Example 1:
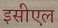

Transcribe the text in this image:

इसीएल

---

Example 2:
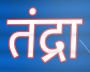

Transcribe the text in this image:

तंद्रा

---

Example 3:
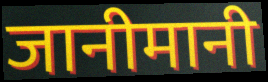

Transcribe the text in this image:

जानीमानी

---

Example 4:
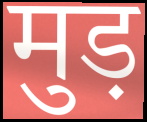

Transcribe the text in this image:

मुड़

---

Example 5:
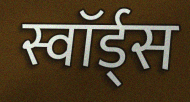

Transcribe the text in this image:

स्वॉर्ड्स